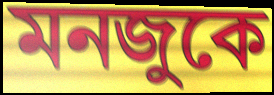
মনজুকে